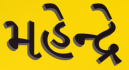
મહેન્દ્રે